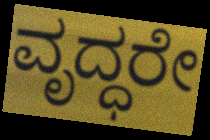
ವೃದ್ಧರೇ